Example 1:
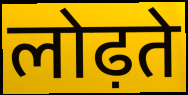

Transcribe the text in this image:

लोढ़ते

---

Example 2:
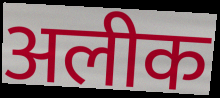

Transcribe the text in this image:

अलीक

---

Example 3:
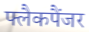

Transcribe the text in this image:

फ्लैकपैंजर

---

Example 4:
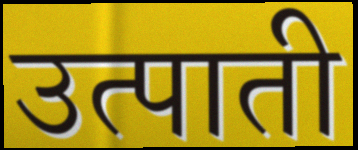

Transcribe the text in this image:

उत्पाती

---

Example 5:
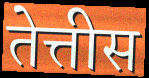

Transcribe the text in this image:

तेत्तीस